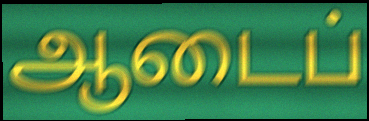
ஆடைப்